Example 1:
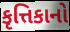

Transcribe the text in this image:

કૃત્તિકાનો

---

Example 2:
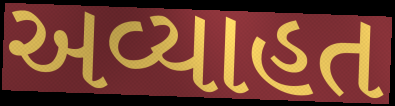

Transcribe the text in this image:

અવ્યાહત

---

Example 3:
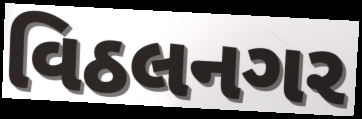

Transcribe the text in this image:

વિઠલનગર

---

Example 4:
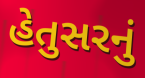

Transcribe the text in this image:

હેતુસરનું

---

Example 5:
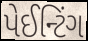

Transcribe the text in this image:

પેઈન્ટિંગ